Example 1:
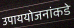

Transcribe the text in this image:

उपाययोजनांकडे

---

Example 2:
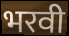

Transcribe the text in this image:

भरवी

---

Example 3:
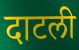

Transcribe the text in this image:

दाटली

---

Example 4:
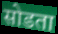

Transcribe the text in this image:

सोडता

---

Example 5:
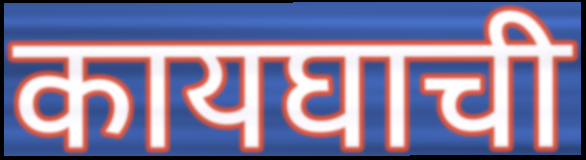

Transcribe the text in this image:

कायघाची